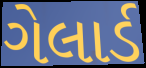
ગેલાર્ડ